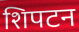
शिपटन